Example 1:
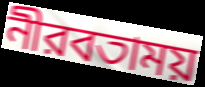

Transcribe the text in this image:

নীরবতাময়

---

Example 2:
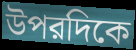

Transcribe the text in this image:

উপরদিকে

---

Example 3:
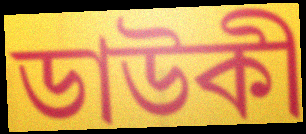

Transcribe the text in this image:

ডাউকী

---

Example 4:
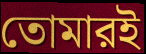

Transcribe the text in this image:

তোমারই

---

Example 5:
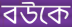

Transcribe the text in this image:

বউকে